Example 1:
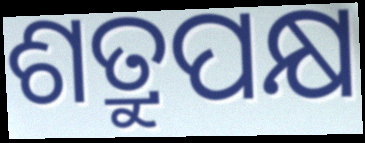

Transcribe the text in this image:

ଶତ୍ରୁପକ୍ଷ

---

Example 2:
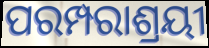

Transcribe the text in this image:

ପରମ୍ପରାଶ୍ରୟୀ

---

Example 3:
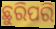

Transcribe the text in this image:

ଛୁରିପରି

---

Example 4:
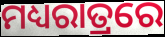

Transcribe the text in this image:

ମଧ୍ୟରାତ୍ରରେ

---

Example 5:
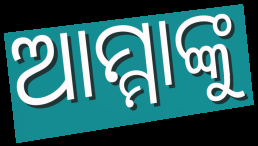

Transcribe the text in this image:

ଆମ୍ମାଙ୍କୁ